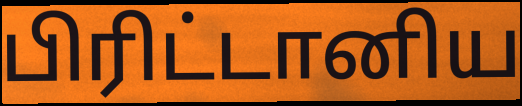
பிரிட்டானிய